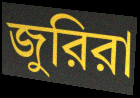
জুরিরা